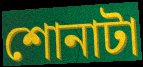
শোনাটা